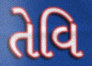
તેવિ